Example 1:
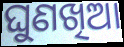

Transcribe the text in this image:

ଘୁଣଖିଆ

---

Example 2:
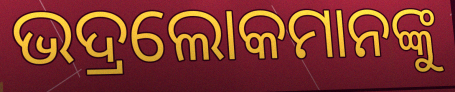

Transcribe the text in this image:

ଭଦ୍ରଲୋକମାନଙ୍କୁ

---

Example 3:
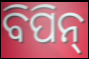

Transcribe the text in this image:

ବିପିନ୍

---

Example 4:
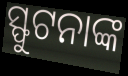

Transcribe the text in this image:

ସ୍ଫୁଟନାଙ୍କ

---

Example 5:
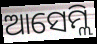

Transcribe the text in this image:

ଆସେମ୍ଲି